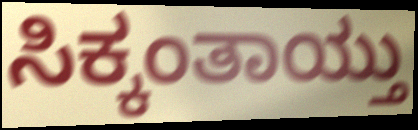
ಸಿಕ್ಕಂತಾಯ್ತು